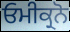
ਓਮੀਕ੍ਰਨੋ